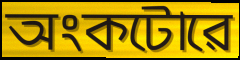
অংকটোৱে